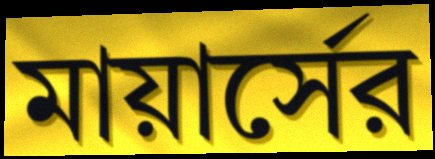
মায়ার্সের